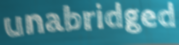
unabridged